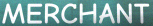
MERCHANT